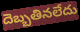
దెబ్బతినలేదు